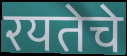
रयतेचे